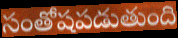
సంతోషపడుతుంది